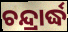
ଚନ୍ଦ୍ରାର୍ଦ୍ଧ